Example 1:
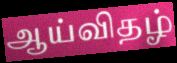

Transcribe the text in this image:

ஆய்விதழ்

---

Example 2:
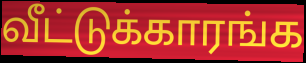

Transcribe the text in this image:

வீட்டுக்காரங்க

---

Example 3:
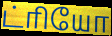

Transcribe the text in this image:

ட்ரியோ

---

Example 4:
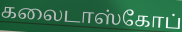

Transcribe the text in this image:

கலைடாஸ்கோப்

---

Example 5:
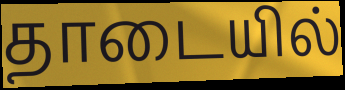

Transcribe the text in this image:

தாடையில்